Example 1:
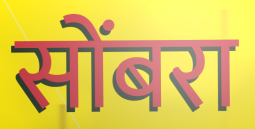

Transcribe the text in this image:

सोंबरा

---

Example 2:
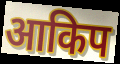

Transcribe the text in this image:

आकिप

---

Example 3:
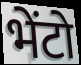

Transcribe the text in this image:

भेंटो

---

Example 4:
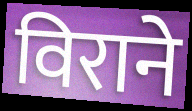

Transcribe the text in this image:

विराने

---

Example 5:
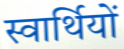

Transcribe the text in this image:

स्वार्थियों